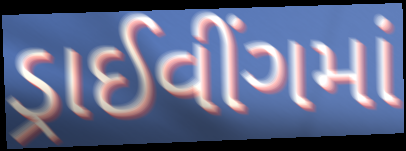
ડ્રાઈવીંગમાં